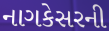
નાગકેસરની